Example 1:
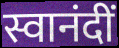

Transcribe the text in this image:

स्वानंदीं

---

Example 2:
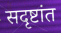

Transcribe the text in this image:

सदृष्टांत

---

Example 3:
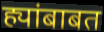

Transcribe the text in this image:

ह्यांबाबत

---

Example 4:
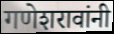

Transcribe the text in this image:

गणेशरावांनी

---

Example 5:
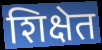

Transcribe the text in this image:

शिक्षेत